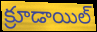
క్రూడాయిల్